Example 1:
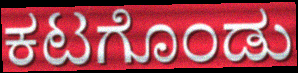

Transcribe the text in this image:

ಕಟಗೊಂಡು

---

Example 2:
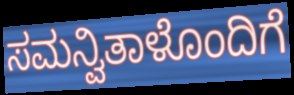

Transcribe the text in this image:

ಸಮನ್ವಿತಾಳೊಂದಿಗೆ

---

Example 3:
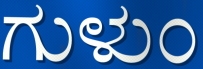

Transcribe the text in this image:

ಗುಳುಂ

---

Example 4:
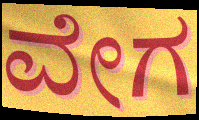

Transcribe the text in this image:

ವೇಗ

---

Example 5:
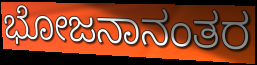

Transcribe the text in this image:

ಭೋಜನಾನಂತರ